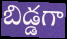
బిడ్డగా